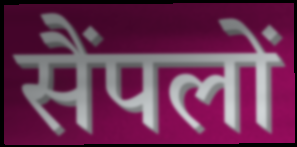
सैंपलों